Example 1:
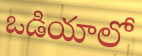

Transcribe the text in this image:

ఒడియాలో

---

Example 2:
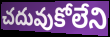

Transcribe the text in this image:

చదువుకోలేని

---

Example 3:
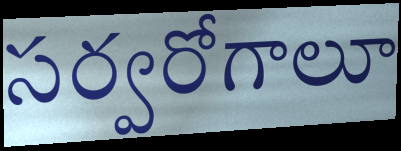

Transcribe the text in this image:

సర్వరోగాలూ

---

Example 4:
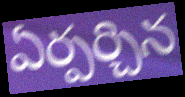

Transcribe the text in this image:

ఏర్పర్చిన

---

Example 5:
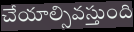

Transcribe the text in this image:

చేయాల్సివస్తుంది